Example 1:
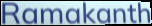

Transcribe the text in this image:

Ramakanth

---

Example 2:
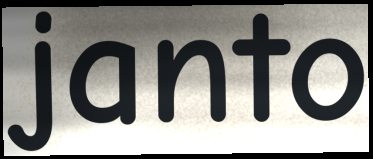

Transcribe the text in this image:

janto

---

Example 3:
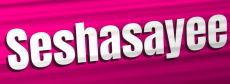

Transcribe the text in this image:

Seshasayee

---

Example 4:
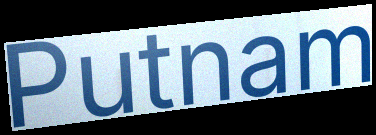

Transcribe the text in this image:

Putnam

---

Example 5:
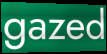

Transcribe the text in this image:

gazed